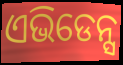
ଏଭିଡେନ୍ସ